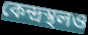
কেন্দ্রস্থলও